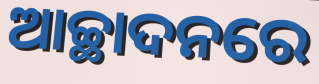
ଆଚ୍ଛାଦନରେ